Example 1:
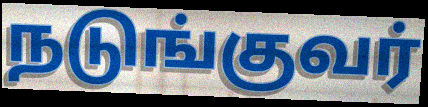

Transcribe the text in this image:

நடுங்குவர்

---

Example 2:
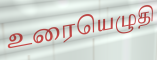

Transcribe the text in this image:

உரையெழுதி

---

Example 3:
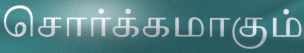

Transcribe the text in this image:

சொர்க்கமாகும்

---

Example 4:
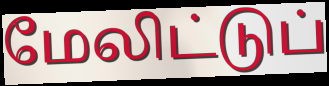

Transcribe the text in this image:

மேலிட்டுப்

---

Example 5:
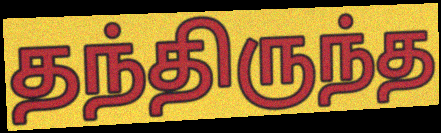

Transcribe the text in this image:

தந்திருந்த